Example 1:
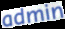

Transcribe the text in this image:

admin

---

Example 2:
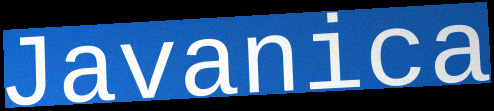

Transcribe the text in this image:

Javanica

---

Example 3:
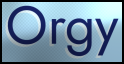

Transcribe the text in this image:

Orgy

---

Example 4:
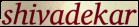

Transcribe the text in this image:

shivadekar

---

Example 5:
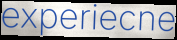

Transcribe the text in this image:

experiecne